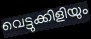
വെട്ടുക്കിളിയും